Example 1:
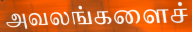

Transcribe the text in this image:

அவலங்களைச்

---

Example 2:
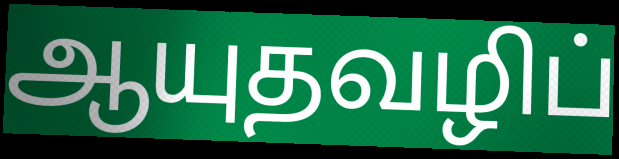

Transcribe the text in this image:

ஆயுதவழிப்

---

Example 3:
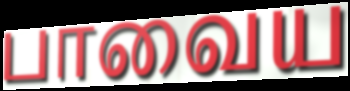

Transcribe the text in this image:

பாவைய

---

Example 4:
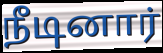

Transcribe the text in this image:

நீடினார்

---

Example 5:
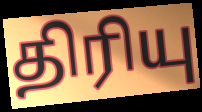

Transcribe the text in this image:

திரியு